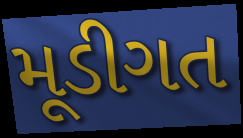
મૂડીગત